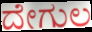
ದೇಗುಲ